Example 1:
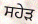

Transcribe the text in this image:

ਸਹੇੜ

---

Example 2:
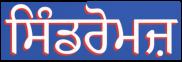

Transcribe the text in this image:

ਸਿੰਡਰੋਮਜ਼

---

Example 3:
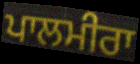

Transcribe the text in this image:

ਪਾਲਮੀਰਾ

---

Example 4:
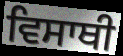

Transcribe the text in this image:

ਵਿਸਾਥੀ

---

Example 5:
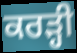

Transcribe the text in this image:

ਕਰੜ੍ਹੀ